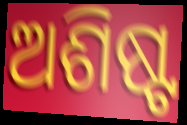
ଅଶିଷ୍ଟ